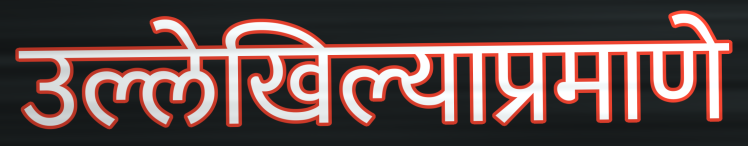
उल्लेखिल्याप्रमाणे